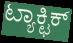
ಟ್ಯಾಕ್ಟಿಕ್